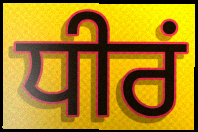
ਧੀਰਂ